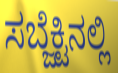
ಸಬ್ಜೆಕ್ಟಿನಲ್ಲಿ